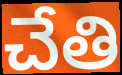
చేతి